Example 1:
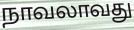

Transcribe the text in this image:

நாவலாவது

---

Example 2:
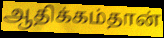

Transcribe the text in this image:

ஆதிக்கம்தான்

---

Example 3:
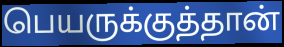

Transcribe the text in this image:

பெயருக்குத்தான்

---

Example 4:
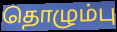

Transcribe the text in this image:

தொழும்பு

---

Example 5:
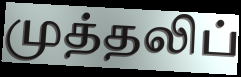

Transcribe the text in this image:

முத்தலிப்